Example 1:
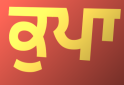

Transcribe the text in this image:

ਕੁਪਾ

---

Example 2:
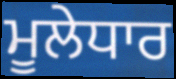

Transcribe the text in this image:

ਮੂਲੇਧਾਰ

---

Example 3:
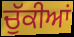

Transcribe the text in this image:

ਚੁੱਕੀਆਂ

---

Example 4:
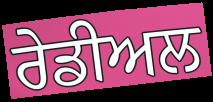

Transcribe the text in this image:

ਰੇਡੀਅਲ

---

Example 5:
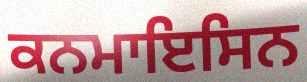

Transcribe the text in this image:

ਕਨਮਾਇਸਿਨ